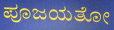
ಪೂಜಯತೋ